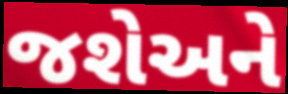
જશેઅને